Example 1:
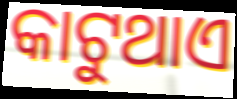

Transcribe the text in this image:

କାଟୁଥାଏ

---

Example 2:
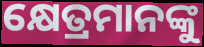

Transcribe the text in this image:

କ୍ଷେତ୍ରମାନଙ୍କୁ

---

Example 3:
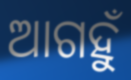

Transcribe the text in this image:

ଆଗହୁଁ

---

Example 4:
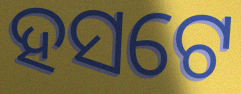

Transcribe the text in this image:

ହସଟେ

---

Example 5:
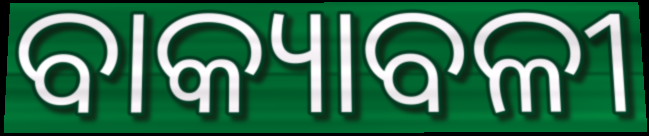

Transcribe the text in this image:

ବାକ୍ୟାବଳୀ